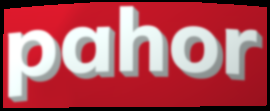
pahor